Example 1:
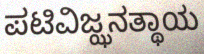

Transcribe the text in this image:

ಪಟಿವಿಜ್ಝನತ್ಥಾಯ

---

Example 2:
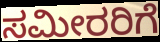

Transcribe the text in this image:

ಸಮೀರರಿಗೆ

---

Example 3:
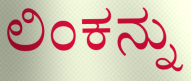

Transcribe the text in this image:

ಲಿಂಕನ್ನು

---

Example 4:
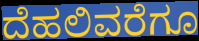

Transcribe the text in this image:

ದೆಹಲಿವರೆಗೂ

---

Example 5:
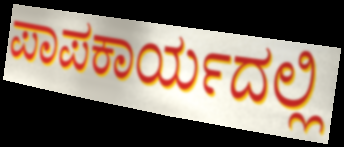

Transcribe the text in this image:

ಪಾಪಕಾರ್ಯದಲ್ಲಿ